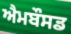
ਐਮਬੌਸਡ